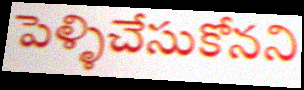
పెళ్ళిచేసుకోనని